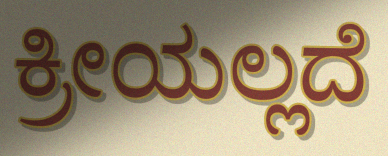
ಕ್ರೀಯಲ್ಲದೆ